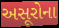
અસૂરોના